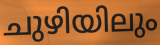
ചുഴിയിലും